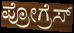
ಪ್ರೋಗ್ರೆಸ್